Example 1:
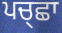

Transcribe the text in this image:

ਪਚ੍ਛਾ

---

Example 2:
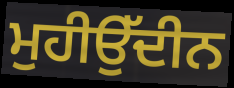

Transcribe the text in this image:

ਮੁਹੀਉੱਦੀਨ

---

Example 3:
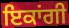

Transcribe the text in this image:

ਇਕਾਂਗੀ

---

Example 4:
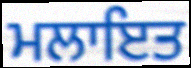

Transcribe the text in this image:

ਮਲਾਇਤ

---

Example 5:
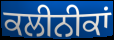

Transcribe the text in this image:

ਕਲੀਨੀਕਾਂ